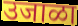
उजाळा